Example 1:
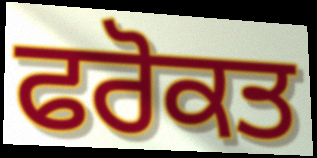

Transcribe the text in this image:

ਫਰੋਕਤ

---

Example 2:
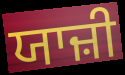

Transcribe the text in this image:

ਯਾਜ਼ੀ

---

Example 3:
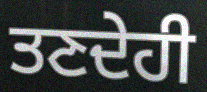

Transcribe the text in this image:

ਤਣਦੇਹੀ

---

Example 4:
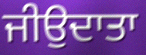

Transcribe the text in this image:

ਜੀਉਦਾਤਾ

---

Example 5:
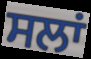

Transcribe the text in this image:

ਸਲਾਂ